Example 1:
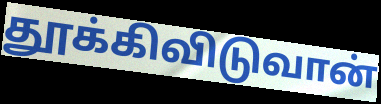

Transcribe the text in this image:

தூக்கிவிடுவான்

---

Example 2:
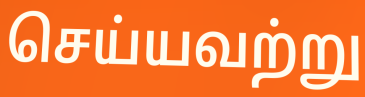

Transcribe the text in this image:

செய்யவற்று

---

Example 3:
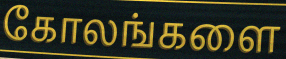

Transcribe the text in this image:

கோலங்களை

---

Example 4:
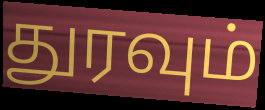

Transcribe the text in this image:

துரவும்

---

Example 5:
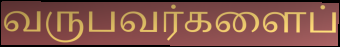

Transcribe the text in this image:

வருபவர்களைப்